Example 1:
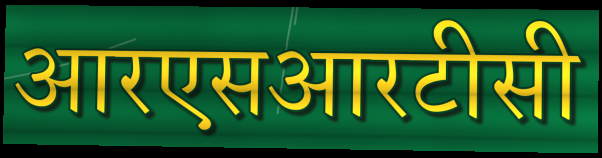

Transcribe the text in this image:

आरएसआरटीसी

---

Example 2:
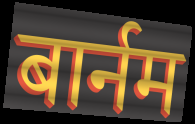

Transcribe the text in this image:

बार्नम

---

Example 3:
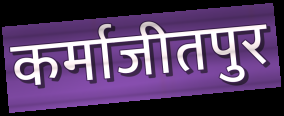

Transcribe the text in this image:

कर्माजीतपुर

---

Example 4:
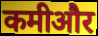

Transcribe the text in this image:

कमीऔर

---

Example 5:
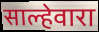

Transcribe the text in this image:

साल्हेवारा